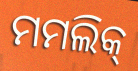
ମମଲିକ୍